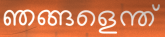
ഞങ്ങളെന്ത്